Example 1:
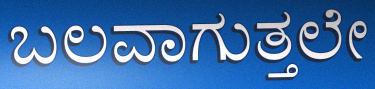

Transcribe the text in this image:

ಬಲವಾಗುತ್ತಲೇ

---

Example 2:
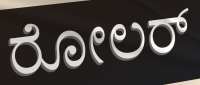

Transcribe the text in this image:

ರೋಲರ್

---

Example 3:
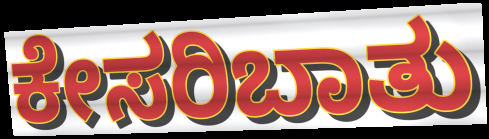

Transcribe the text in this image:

ಕೇಸರಿಬಾತು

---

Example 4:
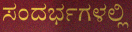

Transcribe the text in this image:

ಸಂದರ್ಭಗಳಲ್ಲಿ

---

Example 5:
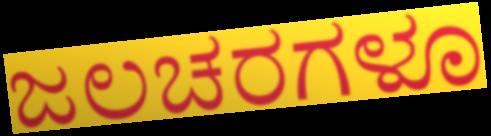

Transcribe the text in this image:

ಜಲಚರಗಳೂ